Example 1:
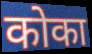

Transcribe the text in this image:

कोका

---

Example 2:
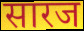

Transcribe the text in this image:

सारज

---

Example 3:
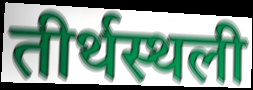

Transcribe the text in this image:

तीर्थस्थली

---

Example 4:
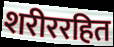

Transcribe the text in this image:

शरीररहित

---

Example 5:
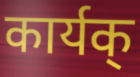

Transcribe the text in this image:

कार्यक्